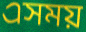
এসময়